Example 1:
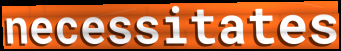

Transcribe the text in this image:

necessitates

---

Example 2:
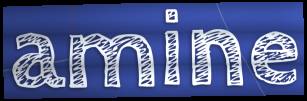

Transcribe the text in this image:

amine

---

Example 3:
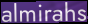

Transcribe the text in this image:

almirahs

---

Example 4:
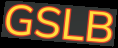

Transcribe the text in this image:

GSLB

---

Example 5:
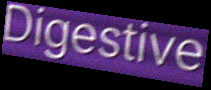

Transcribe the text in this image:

Digestive